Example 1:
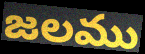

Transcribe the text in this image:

జలము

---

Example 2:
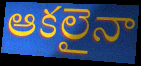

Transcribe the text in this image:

ఆకలైనా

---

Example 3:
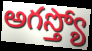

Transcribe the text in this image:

అగస్త్యో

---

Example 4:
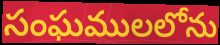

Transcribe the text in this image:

సంఘములలోను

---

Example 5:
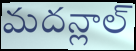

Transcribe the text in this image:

మదన్లాల్